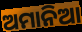
ଅମାନିଆ